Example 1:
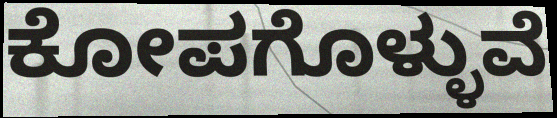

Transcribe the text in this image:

ಕೋಪಗೊಳ್ಳುವೆ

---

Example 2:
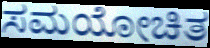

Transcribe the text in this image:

ಸಮಯೋಚಿತ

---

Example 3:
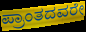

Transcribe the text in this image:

ಪ್ರಾಂತದವರೇ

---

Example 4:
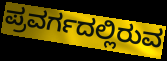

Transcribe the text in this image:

ಪ್ರವರ್ಗದಲ್ಲಿರುವ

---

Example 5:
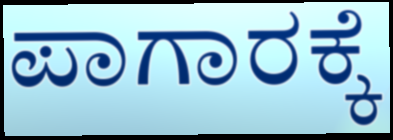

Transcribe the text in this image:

ಪಾಗಾರಕ್ಕೆ